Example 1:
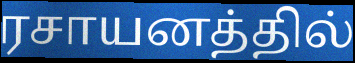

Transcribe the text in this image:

ரசாயனத்தில்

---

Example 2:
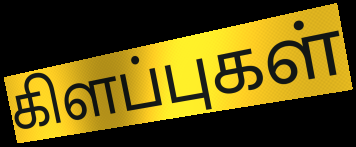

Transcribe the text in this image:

கிளப்புகள்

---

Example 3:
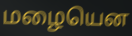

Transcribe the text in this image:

மழையென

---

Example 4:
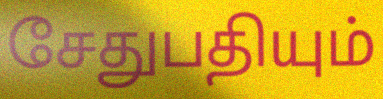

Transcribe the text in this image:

சேதுபதியும்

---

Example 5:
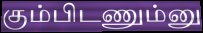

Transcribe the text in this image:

கும்பிடணும்னு